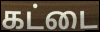
கட்டை